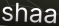
shaa